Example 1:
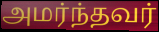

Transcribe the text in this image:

அமர்ந்தவர்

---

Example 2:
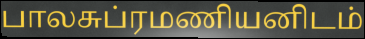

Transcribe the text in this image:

பாலசுப்ரமணியனிடம்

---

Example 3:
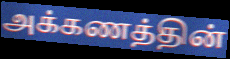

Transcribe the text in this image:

அக்கணத்தின்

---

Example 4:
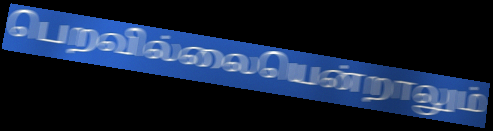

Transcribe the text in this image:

பெறவில்லையென்றாலும்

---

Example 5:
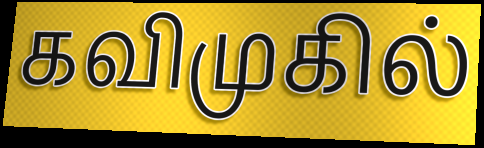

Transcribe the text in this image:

கவிமுகில்